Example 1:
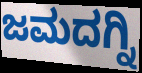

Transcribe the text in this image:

ಜಮದಗ್ನಿ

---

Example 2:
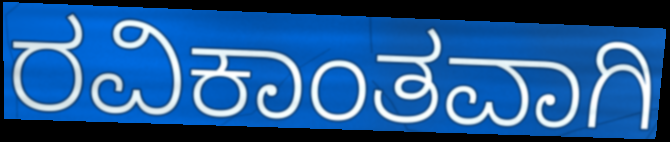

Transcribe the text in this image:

ರವಿಕಾಂತವಾಗಿ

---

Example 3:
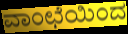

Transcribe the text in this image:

ವಾಂಛೆಯಿಂದ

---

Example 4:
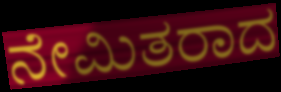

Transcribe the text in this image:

ನೇಮಿತರಾದ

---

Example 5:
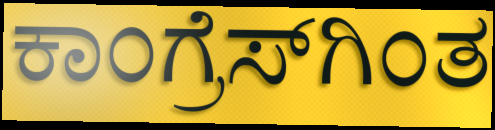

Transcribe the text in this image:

ಕಾಂಗ್ರೆಸ್‌ಗಿಂತ